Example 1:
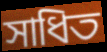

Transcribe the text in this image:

সাধিত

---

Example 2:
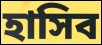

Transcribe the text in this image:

হাসিব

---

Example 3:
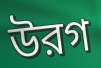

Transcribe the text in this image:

উরগ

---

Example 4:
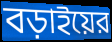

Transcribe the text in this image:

বড়াইয়ের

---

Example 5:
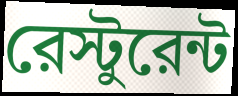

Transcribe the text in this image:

রেস্টুরেন্ট